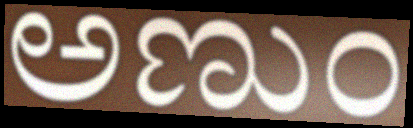
ಅಣುಂ